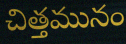
చిత్తమునం